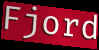
Fjord